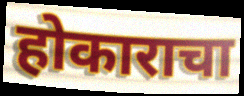
होकाराचा